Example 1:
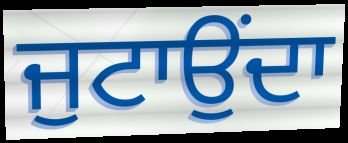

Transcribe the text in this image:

ਜੁਟਾਉਂਦਾ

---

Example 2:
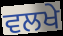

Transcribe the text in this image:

ਵਲਖੇ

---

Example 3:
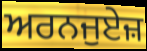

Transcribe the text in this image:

ਅਰਨਜੁਏਜ਼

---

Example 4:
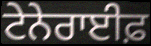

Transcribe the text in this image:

ਟੇਨੇਰਾਈਫ਼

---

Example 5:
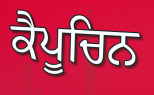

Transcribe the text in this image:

ਕੈਪੂਚਿਨ